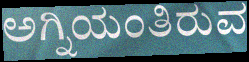
ಅಗ್ನಿಯಂತಿರುವ